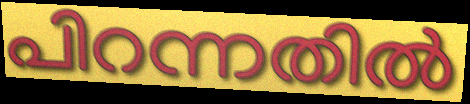
പിറന്നതിൽ